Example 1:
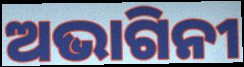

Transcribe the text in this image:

ଅଭାଗିନୀ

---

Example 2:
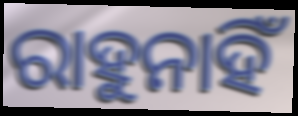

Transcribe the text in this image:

ରାହୁନାହିଁ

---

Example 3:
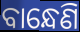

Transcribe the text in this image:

ବାନ୍ଧେଣି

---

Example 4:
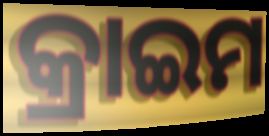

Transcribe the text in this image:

କ୍ରାଇମ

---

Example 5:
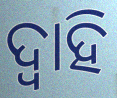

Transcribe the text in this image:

ଦ୍ୱାହି